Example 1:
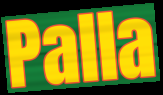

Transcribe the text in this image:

Palla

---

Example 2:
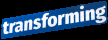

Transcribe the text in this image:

transforming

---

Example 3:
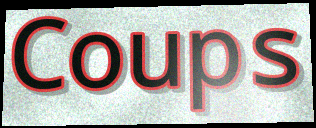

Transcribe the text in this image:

Coups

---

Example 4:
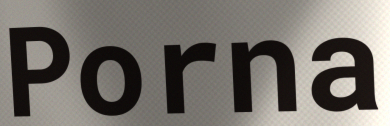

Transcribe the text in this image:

Porna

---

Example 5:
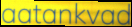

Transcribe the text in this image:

aatankvad